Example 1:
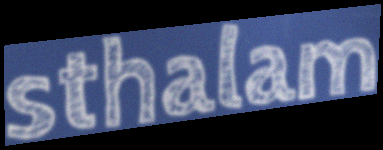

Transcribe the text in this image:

sthalam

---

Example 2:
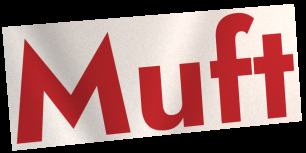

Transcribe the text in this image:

Muft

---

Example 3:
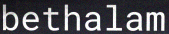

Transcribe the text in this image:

bethalam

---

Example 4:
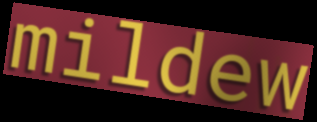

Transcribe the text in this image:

mildew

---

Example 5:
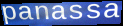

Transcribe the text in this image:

panassa